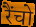
रैंचो